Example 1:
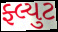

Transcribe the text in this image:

ફ્લ્યુટ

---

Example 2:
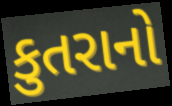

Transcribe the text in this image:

કુતરાનો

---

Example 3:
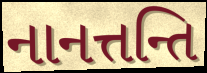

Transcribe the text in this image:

નાનત્તન્તિ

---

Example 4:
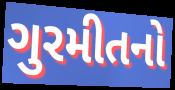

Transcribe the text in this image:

ગુરમીતનો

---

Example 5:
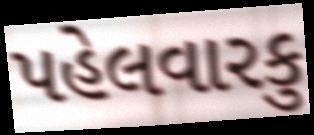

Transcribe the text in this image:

પહેલવારકુ